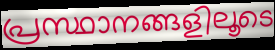
പ്രസ്ഥാനങ്ങളിലൂടെ